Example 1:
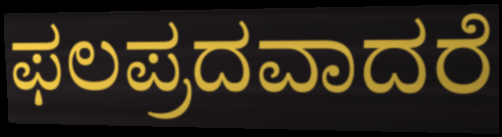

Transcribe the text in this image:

ಫಲಪ್ರದವಾದರೆ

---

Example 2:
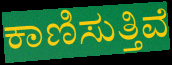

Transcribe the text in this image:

ಕಾಣಿಸುತ್ತಿವೆ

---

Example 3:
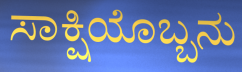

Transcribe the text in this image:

ಸಾಕ್ಷಿಯೊಬ್ಬನು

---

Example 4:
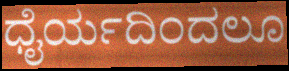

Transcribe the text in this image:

ಧೈರ್ಯದಿಂದಲೂ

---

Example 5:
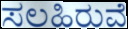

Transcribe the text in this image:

ಸಲಹಿರುವೆ